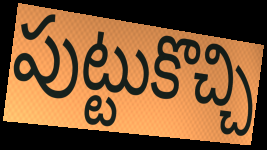
పుట్టుకొచ్చి